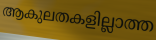
ആകുലതകളില്ലാത്ത